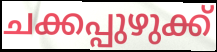
ചക്കപ്പുഴുക്ക്